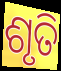
ଶୃତି